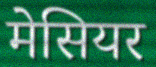
मेसियर